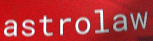
astrolaw